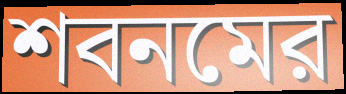
শবনমের